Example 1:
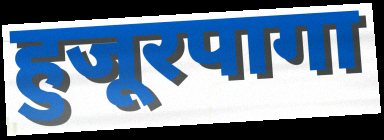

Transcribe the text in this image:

हुजूरपागा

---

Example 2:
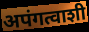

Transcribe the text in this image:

अपंगत्वाशी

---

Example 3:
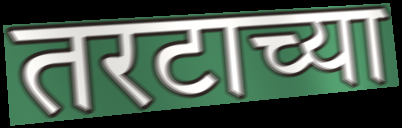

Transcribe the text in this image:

तरटाच्या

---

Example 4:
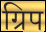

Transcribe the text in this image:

ग्रिप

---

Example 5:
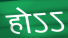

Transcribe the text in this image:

होऽऽ